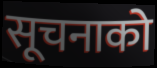
सूचनाको